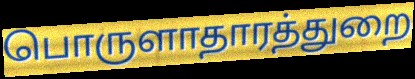
பொருளாதாரத்துறை